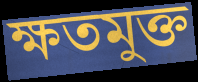
ক্ষতমুক্ত